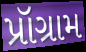
પ્રૉગ્રામ